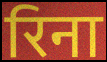
रिना